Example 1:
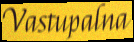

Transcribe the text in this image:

Vastupalna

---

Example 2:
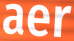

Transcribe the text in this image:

aer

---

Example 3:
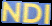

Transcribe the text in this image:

NDI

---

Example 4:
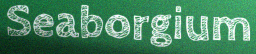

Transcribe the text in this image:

Seaborgium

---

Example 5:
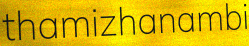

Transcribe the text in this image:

thamizhanambi